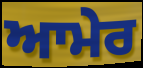
ਆਮੇਰ